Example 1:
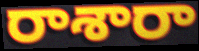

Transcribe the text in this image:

రాశారా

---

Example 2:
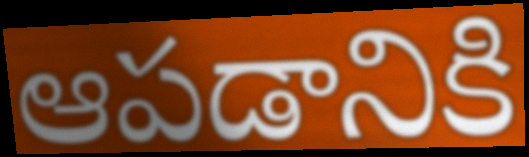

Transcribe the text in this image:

ఆపడానికి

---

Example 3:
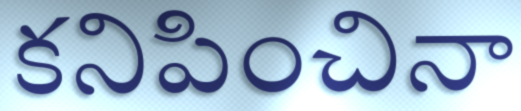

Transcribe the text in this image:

కనిపించినా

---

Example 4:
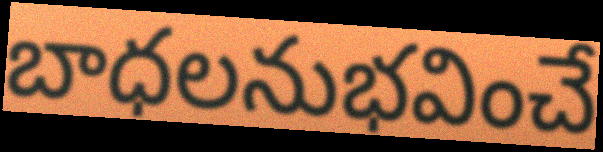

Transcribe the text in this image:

బాధలనుభవించే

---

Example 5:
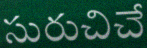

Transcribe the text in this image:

సురుచిచే